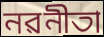
নৱনীতা